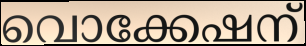
വൊക്കേഷന്